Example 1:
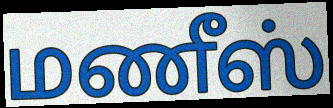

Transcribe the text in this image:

மணீஸ்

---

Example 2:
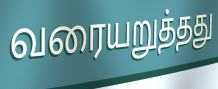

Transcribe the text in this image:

வரையறுத்தது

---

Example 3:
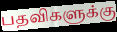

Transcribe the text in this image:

பதவிகளுக்கு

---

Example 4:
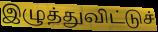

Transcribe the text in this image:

இழுத்துவிட்டுச்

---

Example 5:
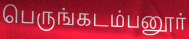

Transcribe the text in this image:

பெருங்கடம்பனூர்